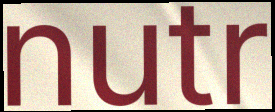
nutr